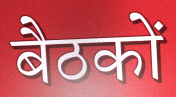
बैठकों